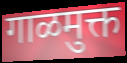
गाळमुक्त